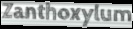
Zanthoxylum